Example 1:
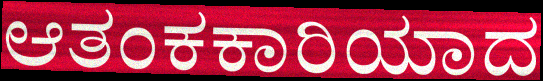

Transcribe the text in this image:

ಆತಂಕಕಾರಿಯಾದ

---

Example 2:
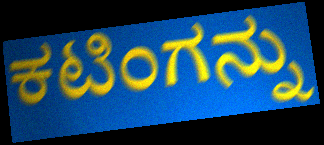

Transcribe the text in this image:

ಕಟಿಂಗನ್ನು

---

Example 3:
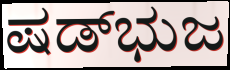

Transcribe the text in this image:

ಷಡ್‌ಭುಜ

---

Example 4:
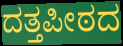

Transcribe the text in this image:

ದತ್ತಪೀಠದ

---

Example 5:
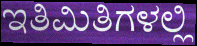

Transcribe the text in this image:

ಇತಿಮಿತಿಗಳಲ್ಲಿ